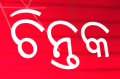
ଚିନ୍ତକ